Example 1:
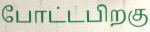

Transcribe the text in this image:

போட்டபிறகு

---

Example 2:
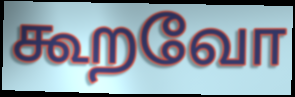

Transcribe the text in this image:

கூறவோ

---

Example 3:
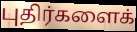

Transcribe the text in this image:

புதிர்களைக்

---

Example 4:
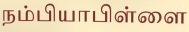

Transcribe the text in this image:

நம்பியாபிள்ளை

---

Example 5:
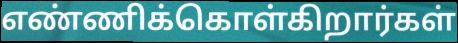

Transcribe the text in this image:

எண்ணிக்கொள்கிறார்கள்